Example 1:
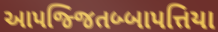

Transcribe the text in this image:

આપજ્જિતબ્બાપત્તિયા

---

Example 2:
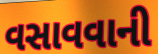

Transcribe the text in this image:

વસાવવાની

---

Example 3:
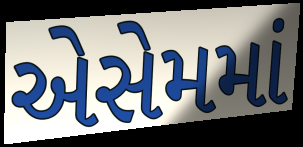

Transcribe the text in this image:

એસેમમાં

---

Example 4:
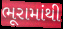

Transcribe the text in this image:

ભૂરામાંથી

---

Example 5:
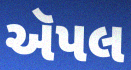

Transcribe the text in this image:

ઍપલ